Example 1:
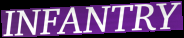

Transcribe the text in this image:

INFANTRY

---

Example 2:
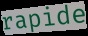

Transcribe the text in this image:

rapide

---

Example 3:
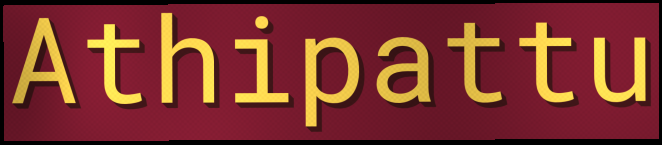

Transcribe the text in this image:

Athipattu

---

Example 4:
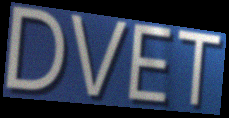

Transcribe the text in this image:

DVET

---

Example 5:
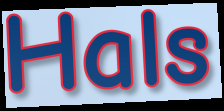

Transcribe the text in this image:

Hals